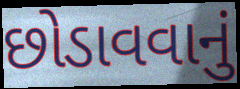
છોડાવવાનું